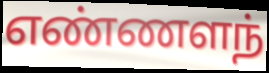
எண்ணளந்